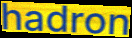
hadron